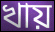
খায়